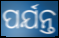
ପର୍ଯନ୍ତ